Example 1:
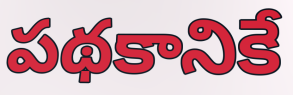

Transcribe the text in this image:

పథకానికే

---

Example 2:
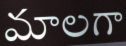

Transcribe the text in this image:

మాలగా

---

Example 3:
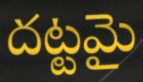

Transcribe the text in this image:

దట్టమై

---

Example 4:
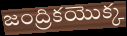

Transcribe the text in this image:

జంద్రికయొక్క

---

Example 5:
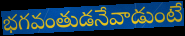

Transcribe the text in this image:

భగవంతుడనేవాడుంటే